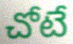
చోటే